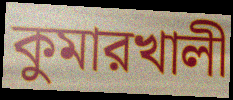
কুমারখালী